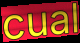
cual